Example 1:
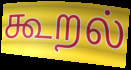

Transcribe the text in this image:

கூறல்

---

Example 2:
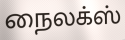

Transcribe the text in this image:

நைலக்ஸ்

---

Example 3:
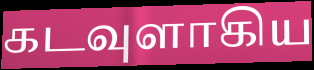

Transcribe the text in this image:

கடவுளாகிய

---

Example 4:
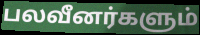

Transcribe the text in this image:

பலவீனர்களும்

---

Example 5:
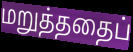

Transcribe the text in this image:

மறுத்ததைப்